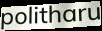
politharu